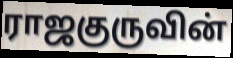
ராஜகுருவின்